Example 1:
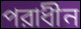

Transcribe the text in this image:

পরাধীন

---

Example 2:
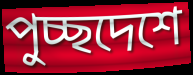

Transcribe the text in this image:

পুচ্ছদেশে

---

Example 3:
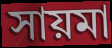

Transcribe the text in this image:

সায়মা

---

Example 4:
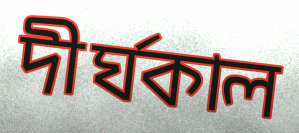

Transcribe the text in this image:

দীর্ঘকাল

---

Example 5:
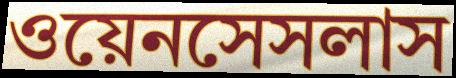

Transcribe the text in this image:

ওয়েনসেসলাস